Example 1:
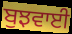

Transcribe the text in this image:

ਬੁਝਵਾਈ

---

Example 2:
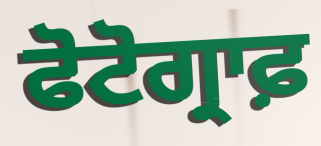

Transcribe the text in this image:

ਫੋਟੋਗ੍ਰਾਫ਼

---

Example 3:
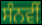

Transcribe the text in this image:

ਸੰਨਵੀਂ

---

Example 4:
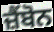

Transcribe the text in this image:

ਜ਼ੈਂਬੋਨ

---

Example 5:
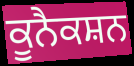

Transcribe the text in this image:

ਕੂਨੈਕਸ਼ਨ